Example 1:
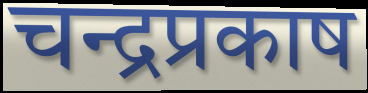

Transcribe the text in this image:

चन्द्रप्रकाष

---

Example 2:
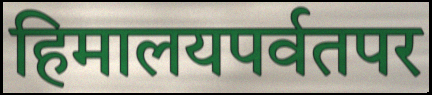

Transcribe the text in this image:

हिमालयपर्वतपर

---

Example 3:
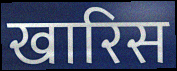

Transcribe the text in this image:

खारिस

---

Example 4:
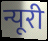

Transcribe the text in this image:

न्यूरी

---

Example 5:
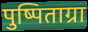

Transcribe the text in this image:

पुष्पिताग्रा